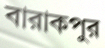
বারাকপুর